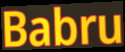
Babru